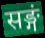
सङ्गं